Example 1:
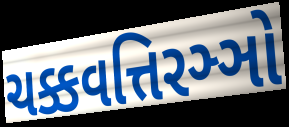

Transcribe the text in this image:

ચક્કવત્તિરઞ્ઞો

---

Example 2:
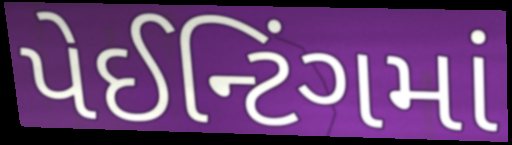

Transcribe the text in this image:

પેઈન્ટિંગમાં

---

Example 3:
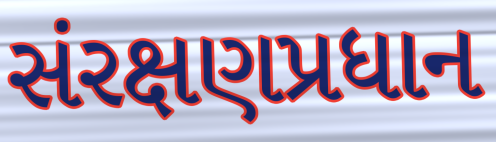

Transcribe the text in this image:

સંરક્ષણપ્રધાન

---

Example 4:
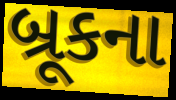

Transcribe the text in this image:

બ્રૂકના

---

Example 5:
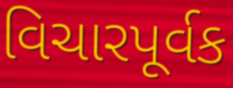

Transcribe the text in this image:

વિચારપૂર્વક